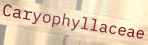
Caryophyllaceae